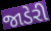
જાડેરી